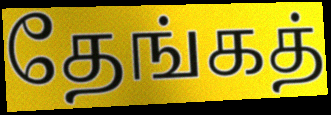
தேங்கத்